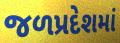
જળપ્રદેશમાં